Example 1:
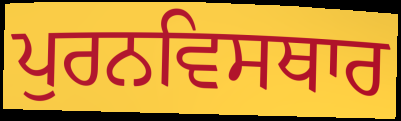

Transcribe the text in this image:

ਪੁਰਨਵਿਸਥਾਰ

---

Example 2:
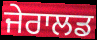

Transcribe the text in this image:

ਜੇਰਾਲਡ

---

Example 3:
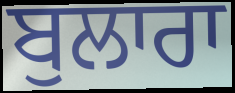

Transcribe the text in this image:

ਬੁਲਾਰਾ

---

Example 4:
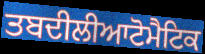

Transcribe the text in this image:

ਤਬਦੀਲੀਆਟੋਮੈਟਿਕ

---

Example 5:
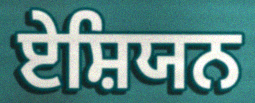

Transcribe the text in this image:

ਏਸ਼ਿਯਨ